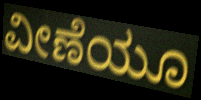
ವೀಣೆಯೂ